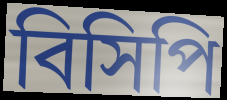
বিসিপি